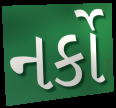
નર્કો